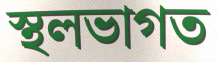
স্থলভাগত